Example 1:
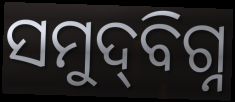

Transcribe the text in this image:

ସମୁଦ୍‌ବିଗ୍ନ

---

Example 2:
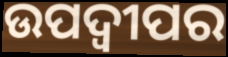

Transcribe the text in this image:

ଉପଦ୍ୱୀପର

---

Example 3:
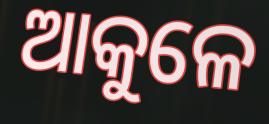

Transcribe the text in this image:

ଆକୁଳେ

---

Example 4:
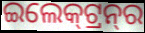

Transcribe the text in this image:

ଇଲେକ୍‍ଟ୍ରନ୍‍ର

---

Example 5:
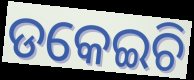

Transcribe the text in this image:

ଡକେଇଚି